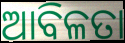
ଆବିଳତା